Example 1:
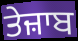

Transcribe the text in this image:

ਤੇਜ਼ਾਬ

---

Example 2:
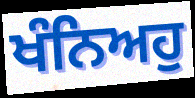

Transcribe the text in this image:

ਖੰਨਿਅਹੁ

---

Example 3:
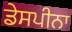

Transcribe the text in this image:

ਡੇਸਪੀਨਾ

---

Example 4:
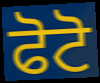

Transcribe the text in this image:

ਫੋਟੋ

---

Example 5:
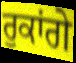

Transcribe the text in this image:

ਰੁਕਾਂਗੇ